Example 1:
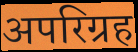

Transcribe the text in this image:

अपरिग्रह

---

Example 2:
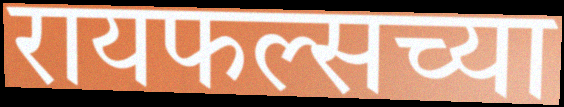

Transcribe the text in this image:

रायफल्सच्या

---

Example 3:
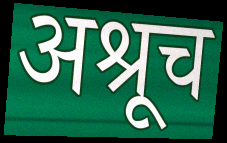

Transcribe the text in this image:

अश्रूच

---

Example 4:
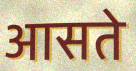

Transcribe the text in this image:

आसते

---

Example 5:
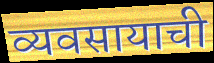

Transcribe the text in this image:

व्यवसायाची